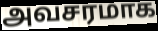
அவசரமாக